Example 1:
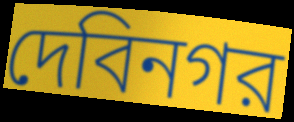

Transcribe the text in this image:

দেবিনগর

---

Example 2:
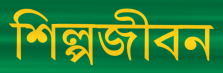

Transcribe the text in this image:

শিল্পজীবন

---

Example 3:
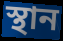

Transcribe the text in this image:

স্থান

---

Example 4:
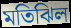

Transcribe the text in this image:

মতিঝিল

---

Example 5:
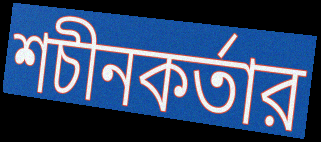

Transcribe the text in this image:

শচীনকর্তার